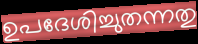
ഉപദേശിച്ചുതന്നതു